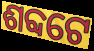
ଶବ୍ଦଟେ